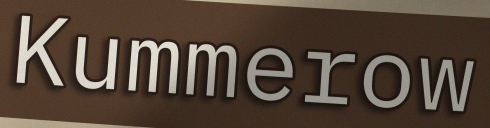
Kummerow